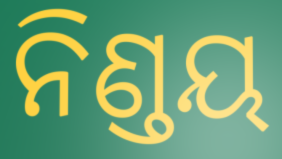
ନିଣ୍ଡୟ